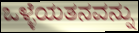
ಒಳ್ಳೆಯತನವನ್ನು